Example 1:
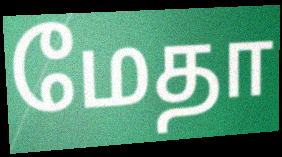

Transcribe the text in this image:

மேதா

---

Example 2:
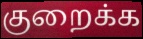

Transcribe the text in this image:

குறைக்க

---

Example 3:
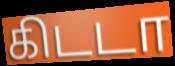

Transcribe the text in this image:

கிடடா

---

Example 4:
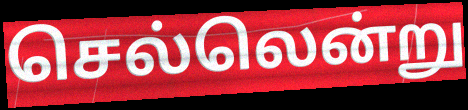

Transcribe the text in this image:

செல்லென்று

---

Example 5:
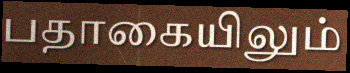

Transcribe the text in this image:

பதாகையிலும்